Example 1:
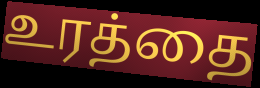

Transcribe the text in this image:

உரத்தை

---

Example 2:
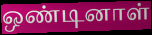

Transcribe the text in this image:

ஒண்டினாள்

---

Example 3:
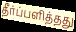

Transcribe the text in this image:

தீர்ப்பளித்தது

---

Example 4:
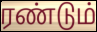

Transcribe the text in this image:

ரண்டும்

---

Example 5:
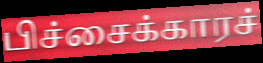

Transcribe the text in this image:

பிச்சைக்காரச்